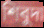
শিবুদা